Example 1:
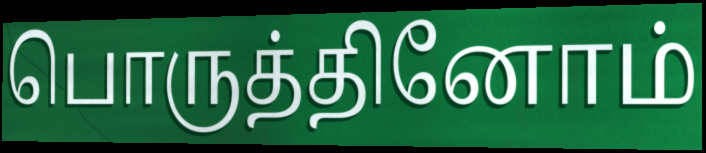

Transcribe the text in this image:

பொருத்தினோம்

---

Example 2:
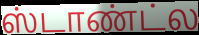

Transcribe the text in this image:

ஸ்டாண்ட்ல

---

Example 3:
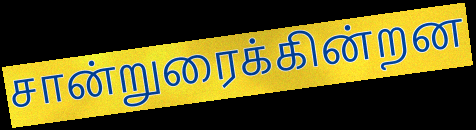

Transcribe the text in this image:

சான்றுரைக்கின்றன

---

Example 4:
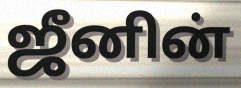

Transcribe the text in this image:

ஜீனின்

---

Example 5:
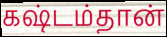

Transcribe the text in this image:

கஷ்டம்தான்